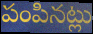
పంపినట్లు